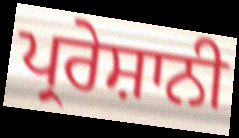
ਪ੍ਰਰੇਸ਼ਾਨੀ